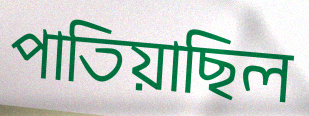
পাতিয়াছিল